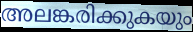
അലങ്കരിക്കുകയും